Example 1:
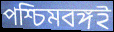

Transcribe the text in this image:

পশ্চিমবঙ্গই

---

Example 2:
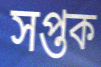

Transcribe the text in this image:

সপ্তক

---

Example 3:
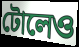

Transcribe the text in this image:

টোলেও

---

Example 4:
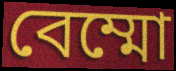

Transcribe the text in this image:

বেম্মো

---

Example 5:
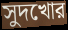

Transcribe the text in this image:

সুদখোর